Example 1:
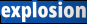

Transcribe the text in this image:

explosion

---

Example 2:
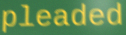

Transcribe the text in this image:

pleaded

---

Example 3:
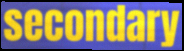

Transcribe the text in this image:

secondary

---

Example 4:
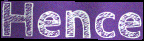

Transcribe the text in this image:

Hence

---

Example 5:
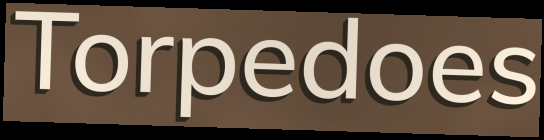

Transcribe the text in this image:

Torpedoes